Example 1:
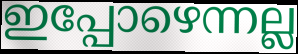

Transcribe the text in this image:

ഇപ്പോഴെന്നല്ല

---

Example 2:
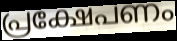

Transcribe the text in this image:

പ്രക്ഷേപണം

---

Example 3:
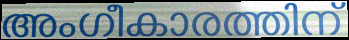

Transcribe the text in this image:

അംഗീകാരത്തിന്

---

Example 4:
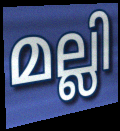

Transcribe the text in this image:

മല്ലി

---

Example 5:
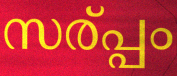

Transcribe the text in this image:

സര്പ്പം